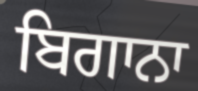
ਬਿਗਾਨਾ